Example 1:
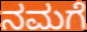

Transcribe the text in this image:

ನಮಗೆ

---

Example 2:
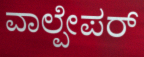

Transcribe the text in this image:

ವಾಲ್ಪೇಪರ್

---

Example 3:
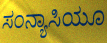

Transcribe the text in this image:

ಸಂನ್ಯಾಸಿಯೂ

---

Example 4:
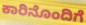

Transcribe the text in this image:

ಕಾರಿನೊಂದಿಗೆ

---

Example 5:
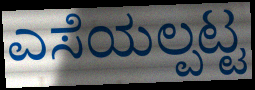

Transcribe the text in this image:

ಎಸೆಯಲ್ಪಟ್ಟ